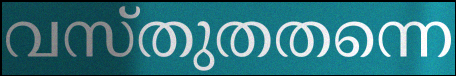
വസ്തുതതന്നെ